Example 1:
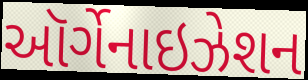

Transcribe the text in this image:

ઑર્ગેનાઇઝેશન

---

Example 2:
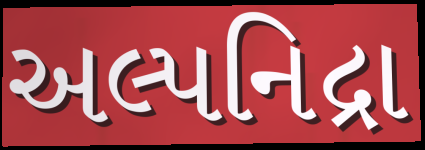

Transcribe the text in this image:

અલ્પનિદ્રા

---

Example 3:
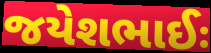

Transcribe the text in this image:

જયેશભાઈઃ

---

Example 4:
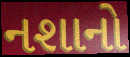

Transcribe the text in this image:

નશાનો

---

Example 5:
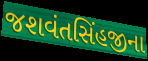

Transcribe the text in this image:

જશવંતસિંહજીના